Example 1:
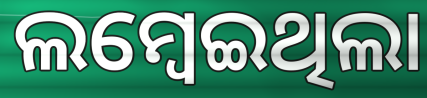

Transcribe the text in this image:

ଲମ୍ବେଇଥିଲା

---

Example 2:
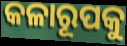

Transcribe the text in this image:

କଳାରୂପକୁ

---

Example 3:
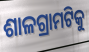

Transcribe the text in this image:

ଶାଳଗ୍ରାମଟିକୁ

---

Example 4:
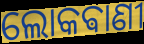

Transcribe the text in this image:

ଲୋକଵାଣୀ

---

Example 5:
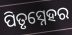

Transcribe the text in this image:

ପିତୃସ୍ନେହର